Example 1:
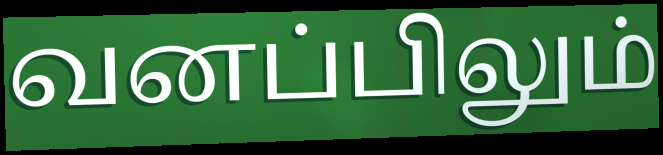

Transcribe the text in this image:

வனப்பிலும்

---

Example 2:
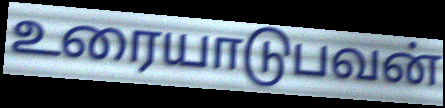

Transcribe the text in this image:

உரையாடுபவன்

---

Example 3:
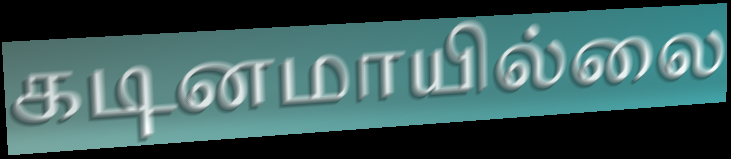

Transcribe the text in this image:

கடினமாயில்லை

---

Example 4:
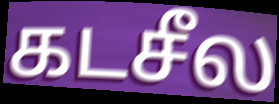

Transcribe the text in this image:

கடசீல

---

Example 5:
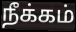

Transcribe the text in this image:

நீக்கம்